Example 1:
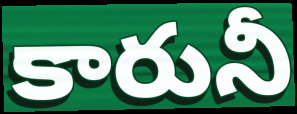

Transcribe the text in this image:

కారునీ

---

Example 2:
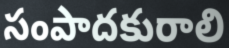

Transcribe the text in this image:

సంపాదకురాలి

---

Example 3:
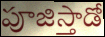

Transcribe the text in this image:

పూజిస్తాడో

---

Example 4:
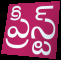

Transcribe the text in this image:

ప్రీస్ట్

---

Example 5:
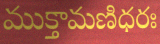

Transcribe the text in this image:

ముక్తామణిధరః